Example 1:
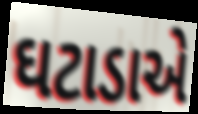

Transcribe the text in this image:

ઘટાડાએ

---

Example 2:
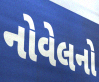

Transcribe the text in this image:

નોવેલનો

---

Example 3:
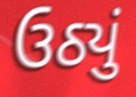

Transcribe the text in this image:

ઉઠ્યું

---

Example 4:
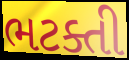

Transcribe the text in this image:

ભટક્તી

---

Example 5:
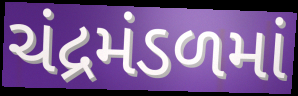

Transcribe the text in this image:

ચંદ્રમંડળમાં